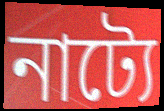
নাট্যে